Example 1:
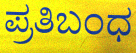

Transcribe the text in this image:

ಪ್ರತಿಬಂಧ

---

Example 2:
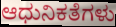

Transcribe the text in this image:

ಆಧುನಿಕತೆಗಳು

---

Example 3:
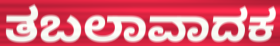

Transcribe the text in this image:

ತಬಲಾವಾದಕ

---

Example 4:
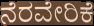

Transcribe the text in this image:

ನೆರವೇರಿಕೆ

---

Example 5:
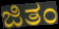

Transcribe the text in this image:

ಜಿತಂ